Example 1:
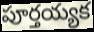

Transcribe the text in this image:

పూర్తయ్యక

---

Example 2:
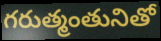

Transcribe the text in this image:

గరుత్మంతునితో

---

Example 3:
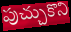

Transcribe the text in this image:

పుచ్చుకొని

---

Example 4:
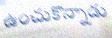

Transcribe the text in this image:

ఉంచుకొన్నాడు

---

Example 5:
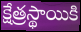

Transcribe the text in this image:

క్షేత్రస్థాయికి